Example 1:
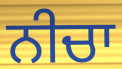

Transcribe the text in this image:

ਨੀਚਾ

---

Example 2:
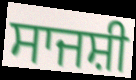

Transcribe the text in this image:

ਸਾਜਸ਼ੀ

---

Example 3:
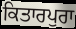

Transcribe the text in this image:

ਕਿਤਾਰਪੁਰਾ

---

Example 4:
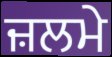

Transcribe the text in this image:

ਜ਼ਲਮੇ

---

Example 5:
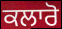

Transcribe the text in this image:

ਕਲਾਰੋ